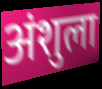
अंशुला